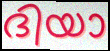
ദിയാ